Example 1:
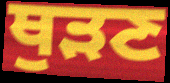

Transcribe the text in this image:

ਥੁੜਣ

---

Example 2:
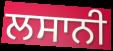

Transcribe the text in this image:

ਲਸਾਨੀ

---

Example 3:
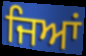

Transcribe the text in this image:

ਜਿਆਂ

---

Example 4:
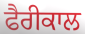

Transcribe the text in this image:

ਫੈਰੀਕਾਲ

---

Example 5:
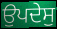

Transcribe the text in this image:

ਉਪਦੇਸੁ